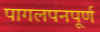
पागलपनपूर्ण